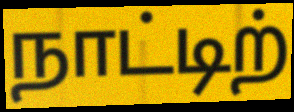
நாட்டிற்